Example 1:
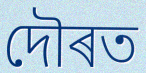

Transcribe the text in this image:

দৌৰত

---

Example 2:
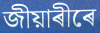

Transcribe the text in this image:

জীয়াৰীৰে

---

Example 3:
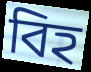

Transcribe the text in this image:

বিহ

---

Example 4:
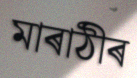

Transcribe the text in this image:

মাৰাঠীৰ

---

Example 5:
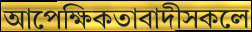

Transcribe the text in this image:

আপেক্ষিকতাবাদীসকলে